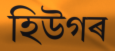
হিউগৰ